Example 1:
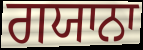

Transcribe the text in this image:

ਗਯਾਨਾ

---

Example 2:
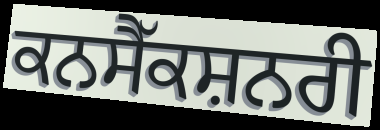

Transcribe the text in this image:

ਕਨਸੈੱਕਸ਼ਨਰੀ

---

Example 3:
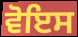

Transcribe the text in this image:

ਵੋਇਸ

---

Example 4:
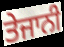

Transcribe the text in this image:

ਤੇਜਾਨੀ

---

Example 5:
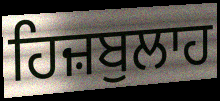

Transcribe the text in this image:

ਹਿਜ਼ਬੁਲਾਹ